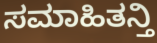
ಸಮಾಹಿತನ್ತಿ